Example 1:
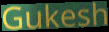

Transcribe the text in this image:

Gukesh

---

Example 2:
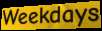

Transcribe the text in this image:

Weekdays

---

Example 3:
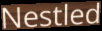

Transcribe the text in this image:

Nestled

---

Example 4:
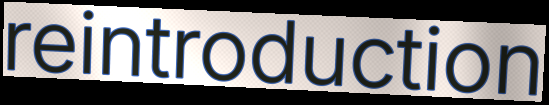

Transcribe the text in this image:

reintroduction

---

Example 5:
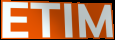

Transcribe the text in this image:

ETIM